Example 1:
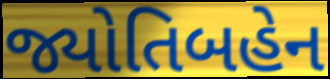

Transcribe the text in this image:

જ્યોતિબહેન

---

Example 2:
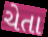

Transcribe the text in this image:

ચેતા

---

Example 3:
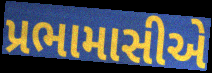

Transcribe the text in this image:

પ્રભામાસીએ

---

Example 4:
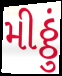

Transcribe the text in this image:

મીઠ્ઠું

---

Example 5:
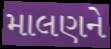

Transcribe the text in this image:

માલણને